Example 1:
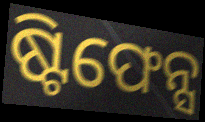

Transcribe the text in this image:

ଷ୍ଟିଫେନ୍ସ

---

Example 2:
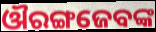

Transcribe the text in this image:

ଔରଙ୍ଗଜେବଙ୍କ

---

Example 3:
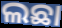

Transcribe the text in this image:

ଲଛା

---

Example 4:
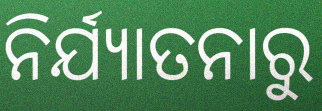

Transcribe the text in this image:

ନିର୍ଯ୍ୟାତନାରୁ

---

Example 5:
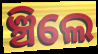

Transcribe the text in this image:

ଞ୍ଚିଲେ